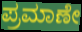
ಪ್ರಮಾಣೇ